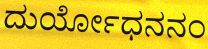
ದುರ್ಯೋಧನನಂ